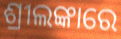
ଶ୍ରୀଲଙ୍କାରେ